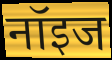
नॉइज